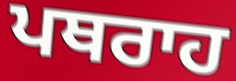
ਪਥਰਾਹ